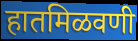
हातमिळवणी